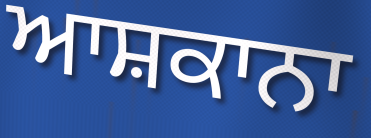
ਆਸ਼ਕਾਨਾ